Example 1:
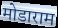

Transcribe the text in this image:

मोडाराम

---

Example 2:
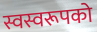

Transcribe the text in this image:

स्वस्वरूपको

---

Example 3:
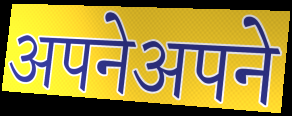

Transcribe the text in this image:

अपनेअपने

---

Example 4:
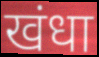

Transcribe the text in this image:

खंधा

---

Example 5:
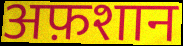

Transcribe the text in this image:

अफ़शान